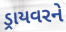
ડ્રાયવરને